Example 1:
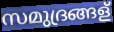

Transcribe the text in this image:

സമുദ്രങ്ങള്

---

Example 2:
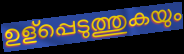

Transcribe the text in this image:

ഉള്പ്പെടുത്തുകയും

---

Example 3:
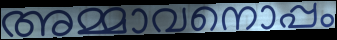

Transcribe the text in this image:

അമ്മാവനൊപ്പം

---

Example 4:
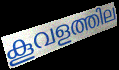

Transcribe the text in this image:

കൂവളത്തില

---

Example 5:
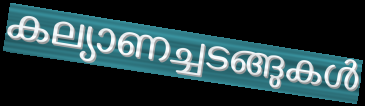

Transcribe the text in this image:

കല്യാണച്ചടങ്ങുകൾ